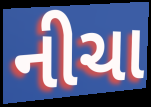
નીચા